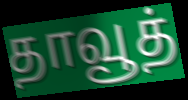
தாவூத்